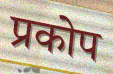
प्रकोप